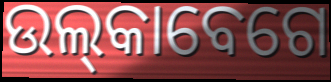
ଉଲ୍‌କାବେଗେ